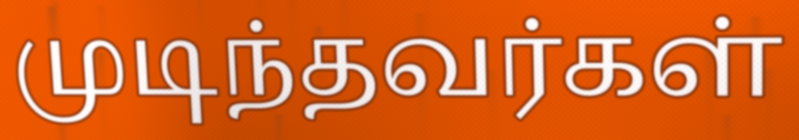
முடிந்தவர்கள்